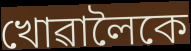
খোৱালৈকে